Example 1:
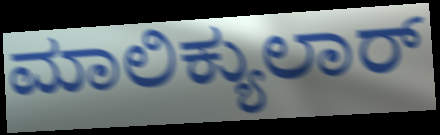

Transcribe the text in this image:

ಮಾಲಿಕ್ಯುಲಾರ್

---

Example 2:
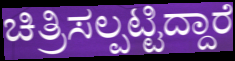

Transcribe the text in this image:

ಚಿತ್ರಿಸಲ್ಪಟ್ಟಿದ್ದಾರೆ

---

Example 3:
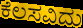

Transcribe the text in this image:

ಕೆಲಸವಿದು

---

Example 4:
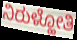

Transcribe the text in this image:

ನಿರುಳ್ಹೋತಿ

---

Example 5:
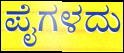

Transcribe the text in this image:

ಪೈಗಳದು